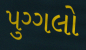
પુગ્ગલો